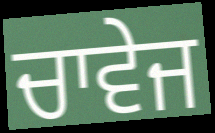
ਚਾਵੇਜ